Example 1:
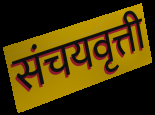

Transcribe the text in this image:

संचयवृत्ती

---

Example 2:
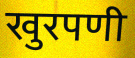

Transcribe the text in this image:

खुरपणी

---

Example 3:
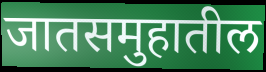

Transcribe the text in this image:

जातसमुहातील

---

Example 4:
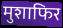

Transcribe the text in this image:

मुशाफिर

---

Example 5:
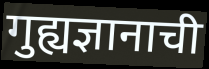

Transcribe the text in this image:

गुह्यज्ञानाची